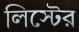
লিস্টের